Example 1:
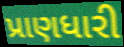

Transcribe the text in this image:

પ્રાણધારી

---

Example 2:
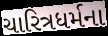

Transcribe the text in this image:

ચારિત્રધર્મના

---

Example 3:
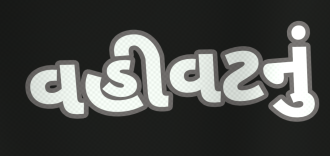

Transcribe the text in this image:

વહીવટનું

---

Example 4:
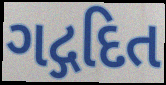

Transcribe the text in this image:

ગદ્ગદિત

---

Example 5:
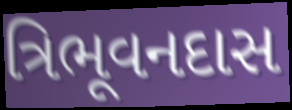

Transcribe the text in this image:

ત્રિભૂવનદાસ